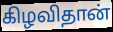
கிழவிதான்